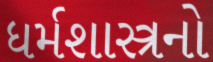
ધર્મશાસ્ત્રનો